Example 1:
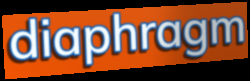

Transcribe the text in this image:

diaphragm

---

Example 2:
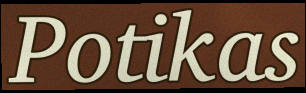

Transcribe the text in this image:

Potikas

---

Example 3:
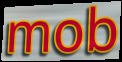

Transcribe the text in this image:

mob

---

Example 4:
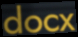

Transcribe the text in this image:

docx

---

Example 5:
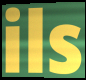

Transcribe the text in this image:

ils